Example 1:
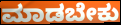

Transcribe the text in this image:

ಮಾಡಬೇಕು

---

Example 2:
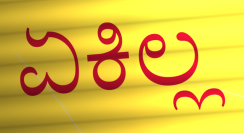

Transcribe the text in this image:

ಏಕಿಲ್ಲ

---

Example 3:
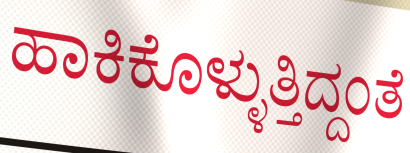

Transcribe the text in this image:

ಹಾಕಿಕೊಳ್ಳುತ್ತಿದ್ದಂತೆ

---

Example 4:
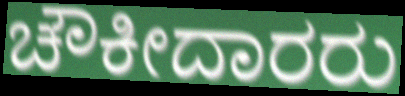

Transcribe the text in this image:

ಚೌಕೀದಾರರು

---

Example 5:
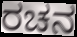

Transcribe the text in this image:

ರಚನ